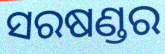
ସରଷଣ୍ଡର